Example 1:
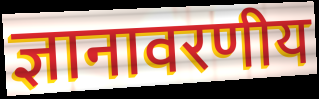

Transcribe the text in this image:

ज्ञानावरणीय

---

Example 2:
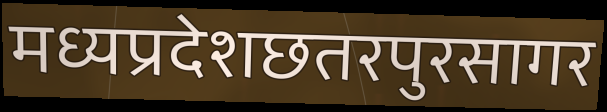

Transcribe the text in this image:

मध्यप्रदेशछतरपुरसागर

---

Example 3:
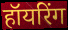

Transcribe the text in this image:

हॉयरिंग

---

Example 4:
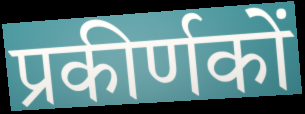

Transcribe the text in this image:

प्रकीर्णकों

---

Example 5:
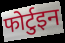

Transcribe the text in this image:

फोर्टुइन